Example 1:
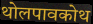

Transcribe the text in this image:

थोलपावकोथ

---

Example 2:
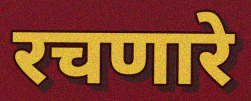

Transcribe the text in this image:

रचणारे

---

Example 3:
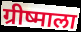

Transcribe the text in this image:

ग्रीष्माला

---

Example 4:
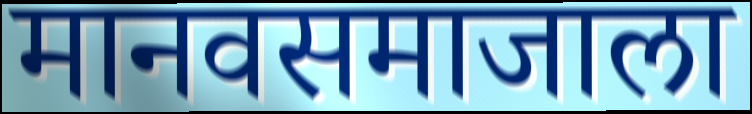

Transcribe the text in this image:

मानवसमाजाला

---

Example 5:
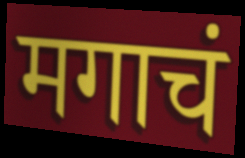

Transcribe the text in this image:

मगाचं